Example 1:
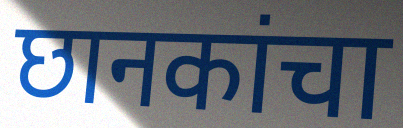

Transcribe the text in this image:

छानकांचा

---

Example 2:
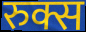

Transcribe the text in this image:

रुक्स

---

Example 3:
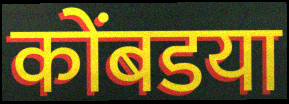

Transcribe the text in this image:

कोंबडया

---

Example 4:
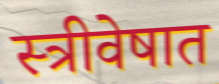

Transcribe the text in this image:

स्त्रीवेषात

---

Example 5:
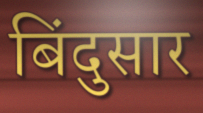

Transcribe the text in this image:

बिंदुसार